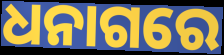
ଧନାଗରେ